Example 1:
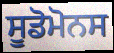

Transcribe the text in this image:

ਸੂਡੋਮੋਨਸ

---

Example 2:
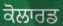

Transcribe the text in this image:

ਕੋਲਾਰਡ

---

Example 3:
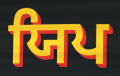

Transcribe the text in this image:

ਯਿਪ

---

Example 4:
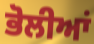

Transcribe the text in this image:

ਭੋਲੀਆਂ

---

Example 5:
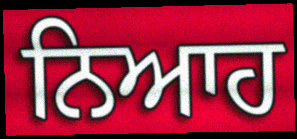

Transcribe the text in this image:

ਨਿਆਹ